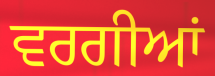
ਵਰਗੀਆਂ